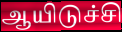
ஆயிடுச்சி